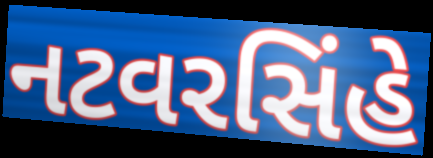
નટવરસિંહે